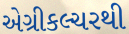
એગ્રીકલ્ચરથી